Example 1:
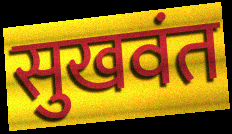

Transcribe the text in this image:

सुखवंत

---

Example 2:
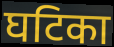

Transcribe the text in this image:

घटिका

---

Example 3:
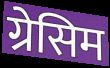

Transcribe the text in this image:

ग्रेसिम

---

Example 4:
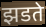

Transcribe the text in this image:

झडते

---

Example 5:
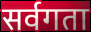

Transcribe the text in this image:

सर्वगता